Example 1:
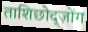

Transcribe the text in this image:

ताशिछोद्ज़ोंग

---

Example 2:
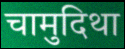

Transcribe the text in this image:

चामुदिथा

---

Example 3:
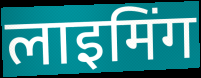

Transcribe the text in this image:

लाइमिंग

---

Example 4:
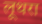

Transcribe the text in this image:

लूथरा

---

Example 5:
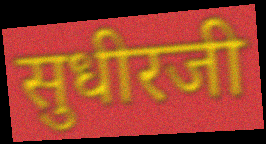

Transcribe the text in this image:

सुधीरजी